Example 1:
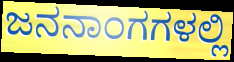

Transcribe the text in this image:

ಜನನಾಂಗಗಳಲ್ಲಿ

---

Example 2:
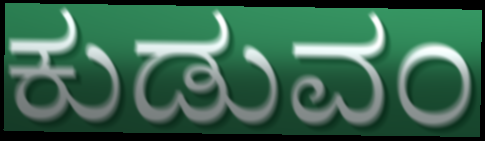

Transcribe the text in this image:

ಕುಡುವಂ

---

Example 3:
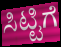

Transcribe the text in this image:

ಸಿಟ್ಟಿಗೆ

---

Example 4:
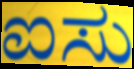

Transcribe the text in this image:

ಐಸು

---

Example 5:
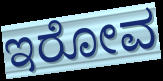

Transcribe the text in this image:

ಇರೋವ